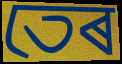
তেৰ